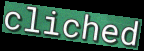
cliched